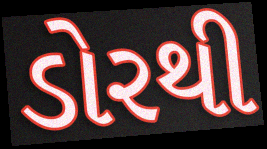
ડોરથી